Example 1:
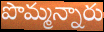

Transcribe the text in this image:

పొమ్మన్నారు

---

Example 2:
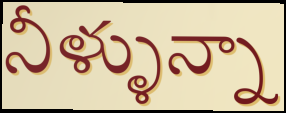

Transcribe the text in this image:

నీళ్ళున్నా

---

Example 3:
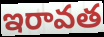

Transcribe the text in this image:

ఇరావత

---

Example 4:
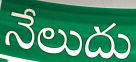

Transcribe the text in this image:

నేలుదు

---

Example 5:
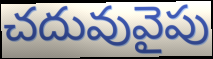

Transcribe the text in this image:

చదువువైపు